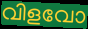
വിളവോ